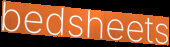
bedsheets